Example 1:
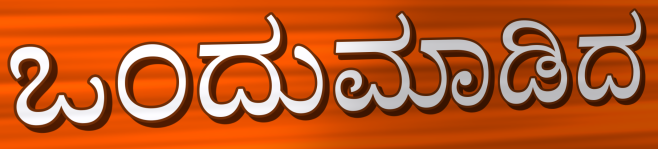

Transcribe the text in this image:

ಒಂದುಮಾಡಿದ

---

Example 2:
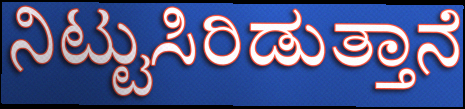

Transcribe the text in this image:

ನಿಟ್ಟುಸಿರಿಡುತ್ತಾನೆ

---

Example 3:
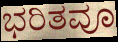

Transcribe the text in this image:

ಭರಿತವೂ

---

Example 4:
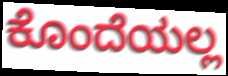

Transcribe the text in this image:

ಕೊಂದೆಯಲ್ಲ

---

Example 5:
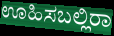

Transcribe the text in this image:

ಊಹಿಸಬಲ್ಲಿರಾ